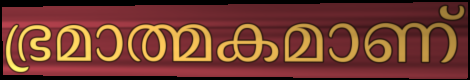
ഭ്രമാത്മകമാണ്